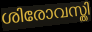
ശിരോവസ്തി